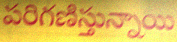
పరిగణిస్తున్నాయి